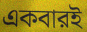
একবারই